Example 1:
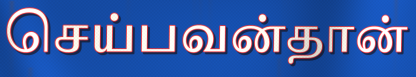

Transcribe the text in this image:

செய்பவன்தான்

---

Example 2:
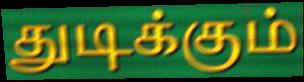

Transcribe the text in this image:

துடிக்கும்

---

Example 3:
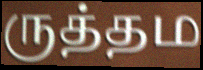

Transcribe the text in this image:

ருத்தம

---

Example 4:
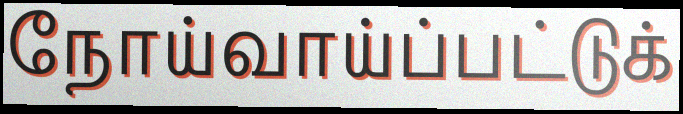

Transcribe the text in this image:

நோய்வாய்ப்பட்டுக்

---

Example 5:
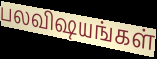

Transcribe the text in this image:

பலவிஷயங்கள்